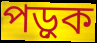
পড়ুক